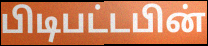
பிடிபட்டபின்